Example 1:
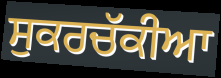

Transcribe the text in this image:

ਸੁਕਰਚੱਕੀਆ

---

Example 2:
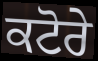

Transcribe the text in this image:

ਕਟੋਰੇ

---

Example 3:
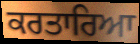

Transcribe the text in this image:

ਕਰਤਾਰਿਆ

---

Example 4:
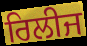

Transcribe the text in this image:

ਰਿਲੀਜ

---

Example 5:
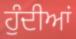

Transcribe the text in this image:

ਹੁੰਦੀਆਂ